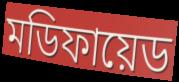
মডিফায়েড